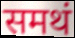
समथं